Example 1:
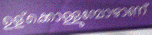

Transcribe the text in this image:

ഉള്ക്കൊള്ളുമ്പോഴാണ്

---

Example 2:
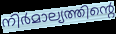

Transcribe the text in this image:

നിർമാല്യത്തിന്റെ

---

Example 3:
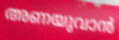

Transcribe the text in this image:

അണയുവാൻ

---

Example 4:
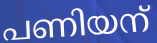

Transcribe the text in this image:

പണിയന്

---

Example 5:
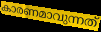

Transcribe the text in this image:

കാരണമാവുന്നത്